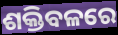
ଶକ୍ତିବଳରେ